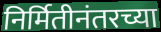
निर्मितीनंतरच्या